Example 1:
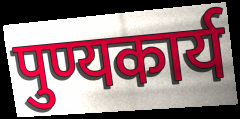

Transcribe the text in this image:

पुण्यकार्य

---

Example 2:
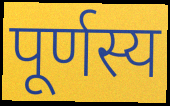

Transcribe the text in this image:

पूर्णस्य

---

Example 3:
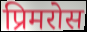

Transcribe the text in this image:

प्रिमरोस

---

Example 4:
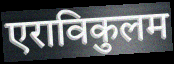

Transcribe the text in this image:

एराविकुलम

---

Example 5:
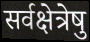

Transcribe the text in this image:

सर्वक्षेत्रेषु